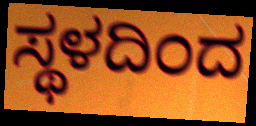
ಸ್ಥಳದಿಂದ